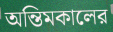
অন্তিমকালের